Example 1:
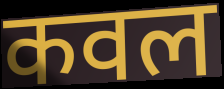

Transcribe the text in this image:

कवल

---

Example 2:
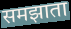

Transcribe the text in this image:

समझाता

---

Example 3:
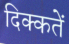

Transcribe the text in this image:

दिक्कतें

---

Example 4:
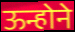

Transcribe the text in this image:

ऊन्होने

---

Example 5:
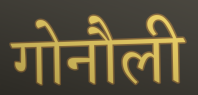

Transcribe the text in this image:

गोनौली